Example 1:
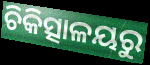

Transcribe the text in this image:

ଚିକିତ୍ସାଳୟରୁ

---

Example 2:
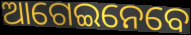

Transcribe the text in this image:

ଆଗେଇନେବେ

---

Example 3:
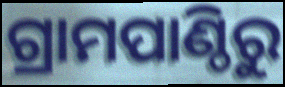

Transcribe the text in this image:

ଗ୍ରାମପାଣ୍ଠିରୁ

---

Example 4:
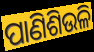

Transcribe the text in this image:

ପାଣିଶିଉଳି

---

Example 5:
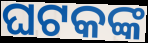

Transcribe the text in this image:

ଘଟକଙ୍କ